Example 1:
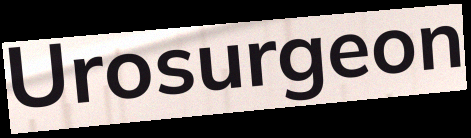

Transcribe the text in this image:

Urosurgeon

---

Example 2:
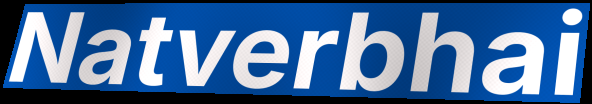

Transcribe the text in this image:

Natverbhai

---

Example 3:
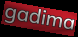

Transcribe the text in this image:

gadima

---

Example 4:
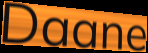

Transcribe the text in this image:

Daane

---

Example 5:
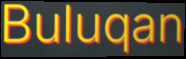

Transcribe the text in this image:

Buluqan